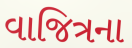
વાજિત્રના